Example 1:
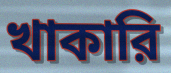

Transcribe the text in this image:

খাকারি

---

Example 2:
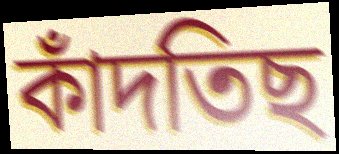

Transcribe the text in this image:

কাঁদতিছ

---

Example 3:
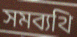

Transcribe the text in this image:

সমব্যথি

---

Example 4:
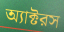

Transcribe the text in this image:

অ্যাক্টরস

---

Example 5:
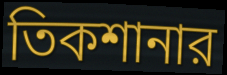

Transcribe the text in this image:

তিকশানার